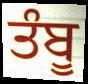
ਤੰਬੂ